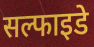
सल्फाइडे